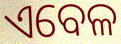
ଏବେଳ